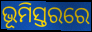
ଭୂମିସ୍ତରରେ